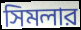
সিমলার